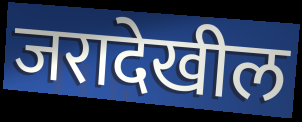
जरादेखील